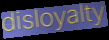
disloyalty